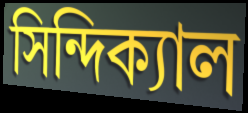
সিন্দিক্যাল